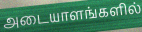
அடையாளங்களில்